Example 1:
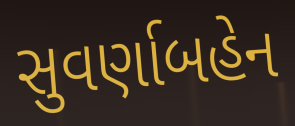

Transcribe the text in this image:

સુવર્ણાબહેન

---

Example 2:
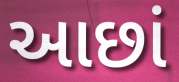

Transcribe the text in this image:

આછાં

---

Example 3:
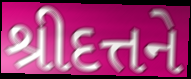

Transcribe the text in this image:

શ્રીદત્તને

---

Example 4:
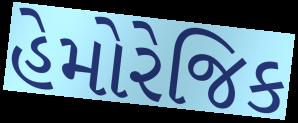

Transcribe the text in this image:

હેમોરેજિક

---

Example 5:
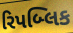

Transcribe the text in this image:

રિપબ્લિક